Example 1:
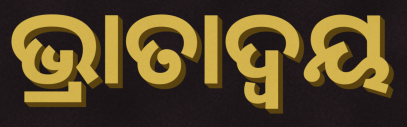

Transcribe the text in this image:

ଭ୍ରାତାଦ୍ୱୟ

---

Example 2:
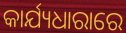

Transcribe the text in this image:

କାର୍ଯ୍ୟଧାରାରେ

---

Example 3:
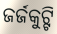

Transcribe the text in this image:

ଜର୍ଜକୁଟ୍ଟି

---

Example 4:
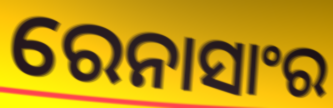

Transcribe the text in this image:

ରେନାସାଂର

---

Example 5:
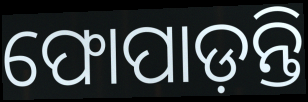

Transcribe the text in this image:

ଫୋପାଡ଼ନ୍ତି